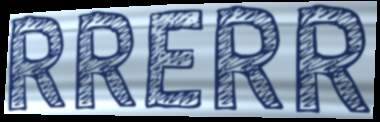
RRERR